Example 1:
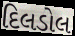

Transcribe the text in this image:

દિલડોલ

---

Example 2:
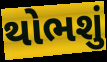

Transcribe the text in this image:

થોભશું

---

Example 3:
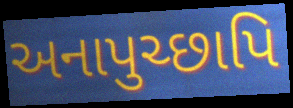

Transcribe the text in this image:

અનાપુચ્છાપિ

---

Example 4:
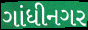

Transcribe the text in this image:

ગાંધીનગર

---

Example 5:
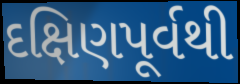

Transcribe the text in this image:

દક્ષિણપૂર્વથી